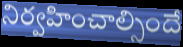
నిర్వహించాల్సిందే